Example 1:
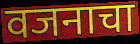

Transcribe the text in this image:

वजनाचा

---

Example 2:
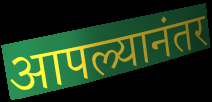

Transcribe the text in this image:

आपल्यानंतर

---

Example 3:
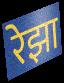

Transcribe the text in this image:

रेझा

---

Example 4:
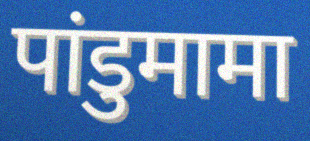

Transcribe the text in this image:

पांडुमामा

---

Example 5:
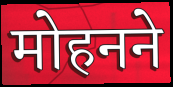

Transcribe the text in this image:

मोहनने